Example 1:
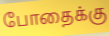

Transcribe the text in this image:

போதைக்கு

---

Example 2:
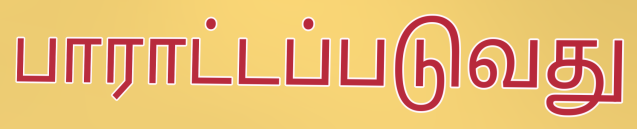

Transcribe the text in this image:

பாராட்டப்படுவது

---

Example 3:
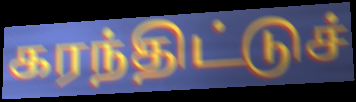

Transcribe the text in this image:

கரந்திட்டுச்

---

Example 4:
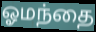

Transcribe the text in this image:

ஓமந்தை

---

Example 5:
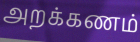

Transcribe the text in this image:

அறக்கணம்